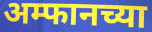
अम्फानच्या